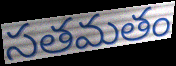
సతమతం